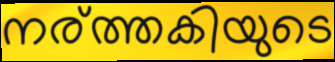
നര്ത്തകിയുടെ